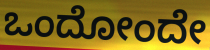
ಒಂದೋಂದೇ